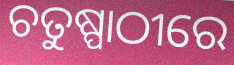
ଚତୁଷ୍ପାଠୀରେ